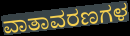
ವಾತಾವರಣಗಳ